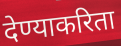
देण्याकरिता